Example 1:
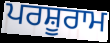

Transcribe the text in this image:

ਪਰਸ਼ੂਰਾਮ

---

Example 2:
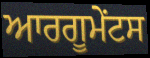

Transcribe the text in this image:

ਆਰਗੂਮੇੰਟਸ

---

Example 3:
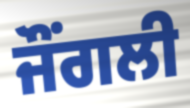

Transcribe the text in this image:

ਜੌਂਗਲੀ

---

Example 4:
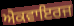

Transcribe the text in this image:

ਐਕਵਾਇਰਜ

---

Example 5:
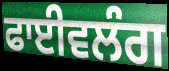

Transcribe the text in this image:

ਫਾਈਵਲੰਗ